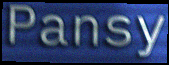
Pansy